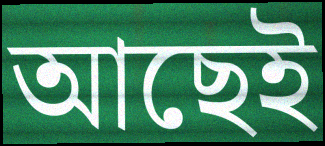
আছেই